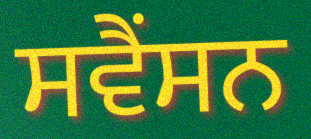
ਸਵੈਂਸਨ